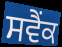
ਸਵੈਂਕ